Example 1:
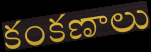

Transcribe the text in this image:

కంకణాలు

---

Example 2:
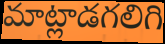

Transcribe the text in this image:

మాట్లాడగలిగి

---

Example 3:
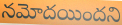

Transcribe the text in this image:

నమోదయిందని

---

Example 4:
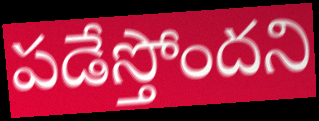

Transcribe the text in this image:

పడేస్తోందని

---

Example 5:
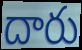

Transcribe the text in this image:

దారు